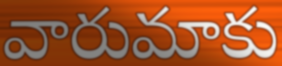
వారుమాకు